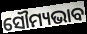
ସୌମ୍ୟଭାବ